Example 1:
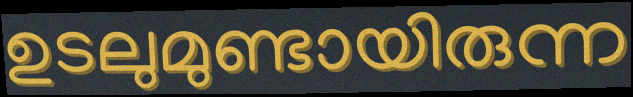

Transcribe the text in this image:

ഉടലുമുണ്ടായിരുന്ന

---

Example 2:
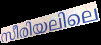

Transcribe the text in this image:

സീരിയലിലെ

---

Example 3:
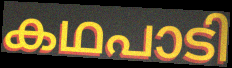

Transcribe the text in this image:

കഥപാടി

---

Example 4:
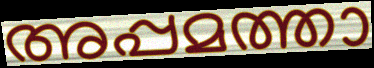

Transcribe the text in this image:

അപ്പമത്താ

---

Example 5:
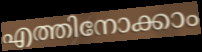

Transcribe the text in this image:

എത്തിനോക്കാം